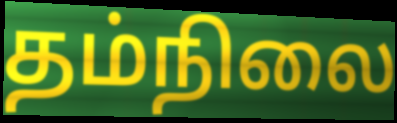
தம்நிலை